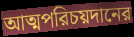
আত্মপরিচয়দানের